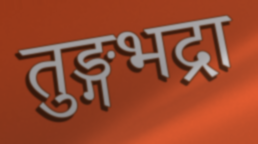
तुङ्गभद्रा